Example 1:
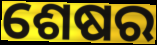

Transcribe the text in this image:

ଶେଷର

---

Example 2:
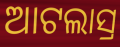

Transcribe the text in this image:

ଆଟଲାସ୍ର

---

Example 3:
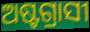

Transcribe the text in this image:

ଅଷ୍ଟଗ୍ରାସୀ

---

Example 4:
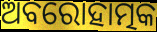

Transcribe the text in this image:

ଅବରୋହାତ୍ମକ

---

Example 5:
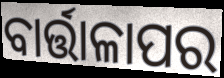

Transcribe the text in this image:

ବାର୍ତ୍ତାଳାପର